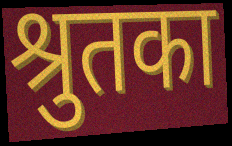
श्रुतका